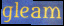
gleam